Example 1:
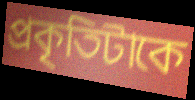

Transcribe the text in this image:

প্রকৃতিটাকে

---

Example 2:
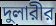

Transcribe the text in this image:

দুলারীর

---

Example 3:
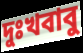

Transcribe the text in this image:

দুঃখবাবু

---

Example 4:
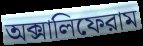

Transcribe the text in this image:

অক্সালিফেরাম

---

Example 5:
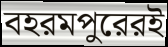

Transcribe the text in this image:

বহরমপুরেরই